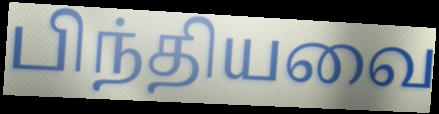
பிந்தியவை